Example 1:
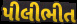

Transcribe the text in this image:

પીલીભીત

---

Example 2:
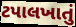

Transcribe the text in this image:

ટપાલખાતું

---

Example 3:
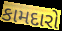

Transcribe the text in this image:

કામદારો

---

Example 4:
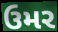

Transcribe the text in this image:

ઉમર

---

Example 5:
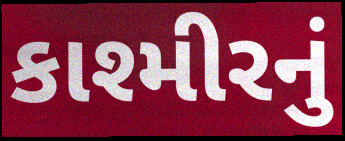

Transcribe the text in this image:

કાશ્મીરનું